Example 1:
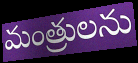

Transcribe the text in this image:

మంత్రులను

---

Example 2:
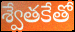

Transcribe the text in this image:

శ్వేతకేతో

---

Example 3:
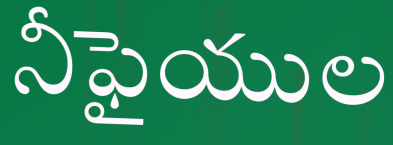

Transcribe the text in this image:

నీఫైయుల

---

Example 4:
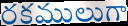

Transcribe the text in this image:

రకములుగా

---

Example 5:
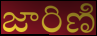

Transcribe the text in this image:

జారిణి